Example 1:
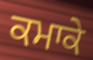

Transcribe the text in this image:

ਕਮਾਕੇ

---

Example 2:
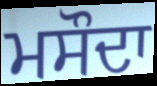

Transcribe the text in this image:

ਮਸੌਦਾ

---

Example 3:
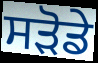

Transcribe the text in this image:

ਸੜੋਡੇ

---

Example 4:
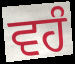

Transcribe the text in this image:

ਵਹੰ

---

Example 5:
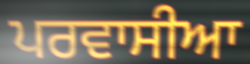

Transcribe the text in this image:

ਪਰਵਾਸੀਆ